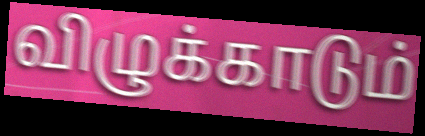
விழுக்காடும்